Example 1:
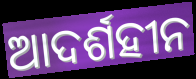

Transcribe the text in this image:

ଆଦର୍ଶହୀନ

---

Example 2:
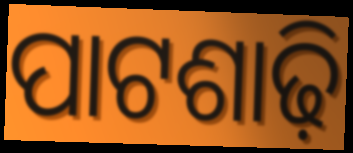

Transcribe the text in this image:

ପାଟଶାଢ଼ି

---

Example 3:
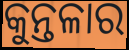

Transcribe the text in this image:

କୁନ୍ତଳାର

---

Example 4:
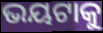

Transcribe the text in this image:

ଭୟଟାକୁ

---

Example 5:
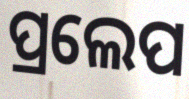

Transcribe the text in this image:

ପ୍ରଲେପ